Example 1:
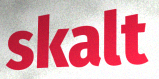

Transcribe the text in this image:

skalt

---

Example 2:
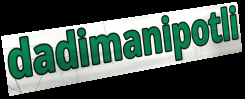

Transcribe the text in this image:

dadimanipotli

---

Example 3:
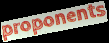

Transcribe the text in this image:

proponents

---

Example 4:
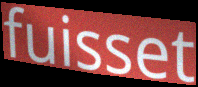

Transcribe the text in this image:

fuisset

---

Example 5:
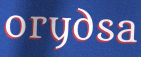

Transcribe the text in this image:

orydsa